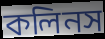
কলিনস